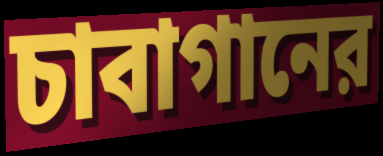
চাবাগানের